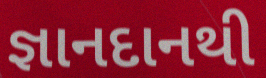
જ્ઞાનદાનથી